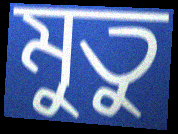
মুতু